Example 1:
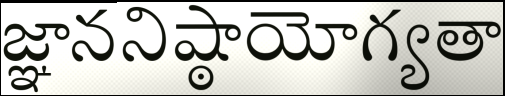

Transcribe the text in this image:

జ్ఞాననిష్ఠాయోగ్యతా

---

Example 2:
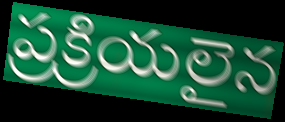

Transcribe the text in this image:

ప్రక్రియలైన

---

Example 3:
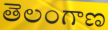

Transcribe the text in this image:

తెలంగాణ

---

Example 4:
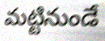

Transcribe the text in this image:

మట్టినుండే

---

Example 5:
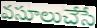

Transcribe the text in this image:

వసూలుచేసే